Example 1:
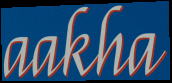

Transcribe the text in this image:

aakha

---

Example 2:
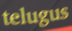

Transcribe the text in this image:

telugus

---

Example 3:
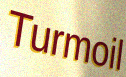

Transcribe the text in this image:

Turmoil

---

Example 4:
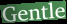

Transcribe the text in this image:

Gentle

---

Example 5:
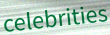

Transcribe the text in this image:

celebrities